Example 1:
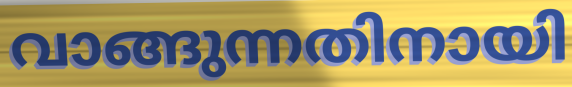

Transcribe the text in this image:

വാങ്ങുന്നതിനായി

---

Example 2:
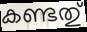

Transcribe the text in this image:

കണ്ടതു്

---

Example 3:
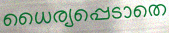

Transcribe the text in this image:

ധൈര്യപ്പെടാതെ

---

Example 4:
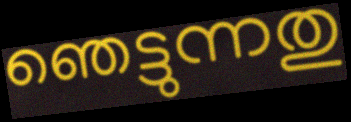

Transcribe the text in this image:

ഞെട്ടുന്നതു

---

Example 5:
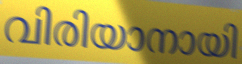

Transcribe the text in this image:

വിരിയാനായി